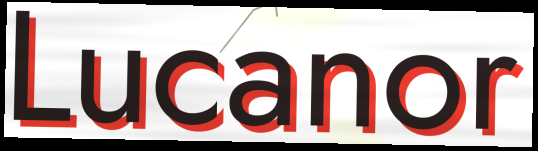
Lucanor